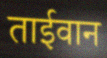
ताईवान